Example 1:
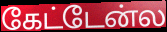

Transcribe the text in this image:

கேட்டேன்ல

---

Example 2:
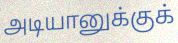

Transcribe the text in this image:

அடியானுக்குக்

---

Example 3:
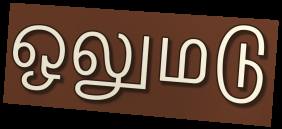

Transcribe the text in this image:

ஒலுமடு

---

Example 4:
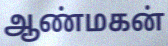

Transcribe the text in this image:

ஆண்மகன்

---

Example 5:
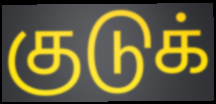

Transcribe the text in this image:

குடுக்